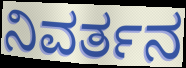
ನಿವರ್ತನ